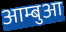
आम्बुआ